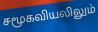
சமூகவியலிலும்